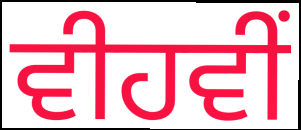
ਵੀਹਵੀਂ